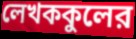
লেখককুলের